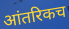
आंतरिकच